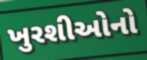
ખુરશીઓનો